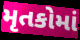
મૃતકોમાં